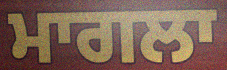
ਮਾਗਲਾ